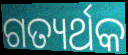
ଗତ୍ୟର୍ଥକ